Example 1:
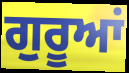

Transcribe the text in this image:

ਗੁਰੂਆਂ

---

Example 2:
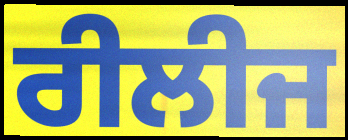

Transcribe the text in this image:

ਰੀਲੀਜ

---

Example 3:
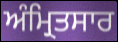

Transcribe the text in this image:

ਅੰਮ੍ਰਿਤਸਾਰ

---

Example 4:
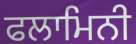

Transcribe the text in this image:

ਫਲਾਮਿਨੀ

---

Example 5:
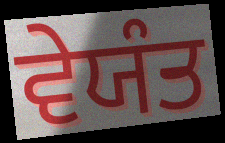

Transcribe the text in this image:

ਵੇਯੰਤ